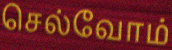
செல்வோம்